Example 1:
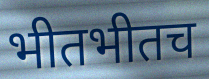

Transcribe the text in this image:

भीतभीतच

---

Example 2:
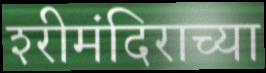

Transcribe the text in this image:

श्रीमंदिराच्या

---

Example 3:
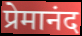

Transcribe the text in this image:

प्रेमानंद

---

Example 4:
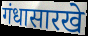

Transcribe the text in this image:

गंधासारखे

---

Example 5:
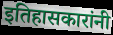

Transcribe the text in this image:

इतिहासकारांनी